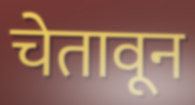
चेतावून